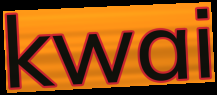
kwai